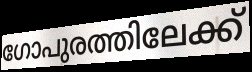
ഗോപുരത്തിലേക്ക്